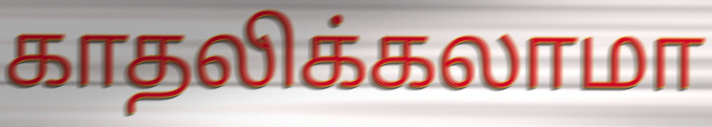
காதலிக்கலாமா